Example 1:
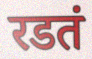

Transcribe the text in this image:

रडतं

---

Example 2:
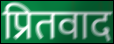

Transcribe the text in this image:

प्रितवाद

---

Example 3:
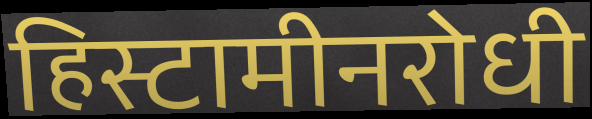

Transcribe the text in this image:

हिस्टामीनरोधी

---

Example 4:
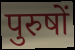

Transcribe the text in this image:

पुरुषों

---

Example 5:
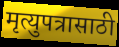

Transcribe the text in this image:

मृत्युपत्रासाठी